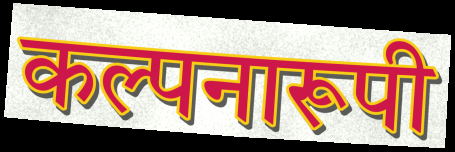
कल्पनारूपी